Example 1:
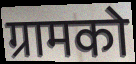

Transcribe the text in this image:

ग्रामको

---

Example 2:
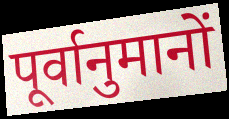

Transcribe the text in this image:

पूर्वानुमानों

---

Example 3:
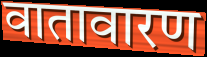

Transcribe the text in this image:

वातावारण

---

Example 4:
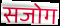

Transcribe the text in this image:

सजोग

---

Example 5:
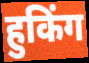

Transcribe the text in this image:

हुकिंग